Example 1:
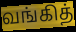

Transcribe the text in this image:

வங்கித்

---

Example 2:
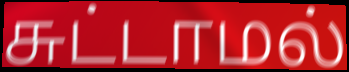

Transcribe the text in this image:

சுட்டாமல்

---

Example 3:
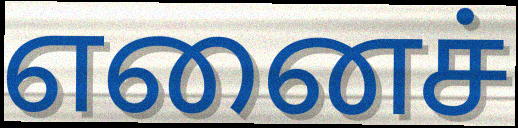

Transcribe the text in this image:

எனைச்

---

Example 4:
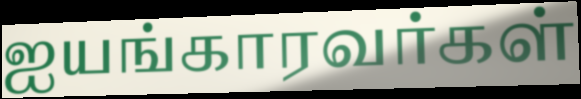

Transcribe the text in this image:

ஐயங்காரவர்கள்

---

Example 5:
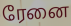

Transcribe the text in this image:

ரேனை